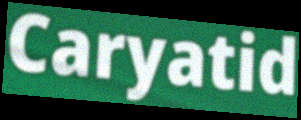
Caryatid